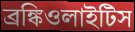
ব্রঙ্কিওলাইটিস